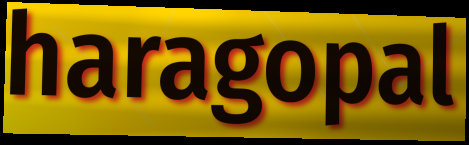
haragopal